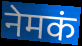
नेमकं